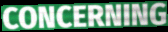
CONCERNING